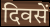
दिवसें